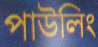
পাউলিং